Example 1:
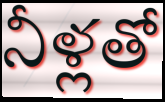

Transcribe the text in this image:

నీళ్లతో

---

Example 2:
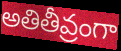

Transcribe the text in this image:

అతితీవ్రంగా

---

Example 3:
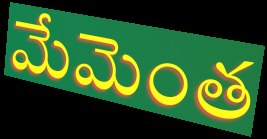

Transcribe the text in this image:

మేమెంత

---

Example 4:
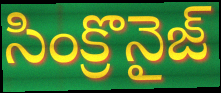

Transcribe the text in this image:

సింక్రొనైజ్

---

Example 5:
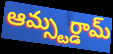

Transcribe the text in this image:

ఆమ్స్టర్డామ్